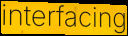
interfacing